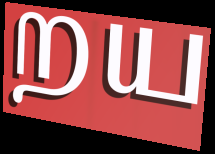
றய